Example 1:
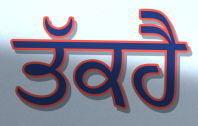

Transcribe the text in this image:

ਤੱਕਹੈ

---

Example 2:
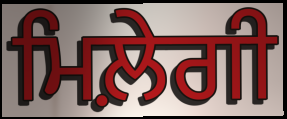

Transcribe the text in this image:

ਮਿਲ਼ੇਗੀ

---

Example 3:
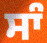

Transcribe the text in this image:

ਸਾੰ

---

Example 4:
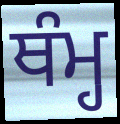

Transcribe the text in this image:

ਥੰਮ੍ਹ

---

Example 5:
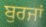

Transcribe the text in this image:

ਬੁਰਜਾਂ